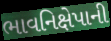
ભાવનિક્ષેપાની